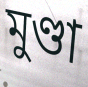
মুণ্ডা